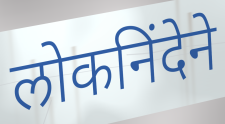
लोकनिंदेने